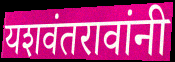
यशवंतरावांनी